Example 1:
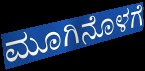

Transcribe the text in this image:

ಮೂಗಿನೊಳಗೆ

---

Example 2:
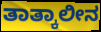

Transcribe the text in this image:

ತಾತ್ಕಾಲೀನ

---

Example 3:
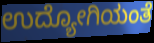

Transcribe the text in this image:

ಉದ್ಯೋಗಿಯಂತೆ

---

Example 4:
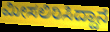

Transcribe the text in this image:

ಮೀಸಲಿರಿಸಿದ್ದಾನೆ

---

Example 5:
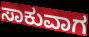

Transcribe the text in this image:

ಸಾಕುವಾಗ